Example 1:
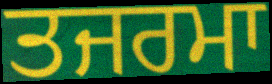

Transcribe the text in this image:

ਤਜਰਮਾ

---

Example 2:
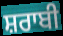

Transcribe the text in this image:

ਸ਼ਰਾਬੀ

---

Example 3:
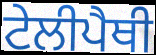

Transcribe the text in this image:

ਟੇਲੀਪੈਥੀ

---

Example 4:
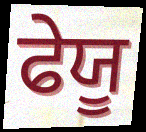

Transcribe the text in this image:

ਫੇਯੂ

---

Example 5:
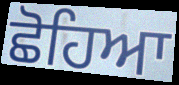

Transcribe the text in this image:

ਛੋਹਿਆ